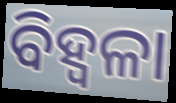
ବିହ୍ଵଳା